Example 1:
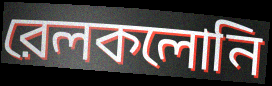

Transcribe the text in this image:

রেলকলোনি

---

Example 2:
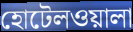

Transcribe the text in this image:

হোটেলওয়ালা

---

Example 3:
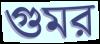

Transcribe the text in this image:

গুমর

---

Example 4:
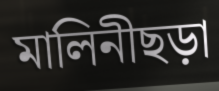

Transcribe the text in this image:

মালিনীছড়া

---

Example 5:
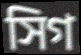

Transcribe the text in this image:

সিগ